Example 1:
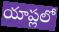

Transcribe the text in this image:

యాప్లలో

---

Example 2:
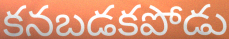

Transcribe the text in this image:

కనబడకపోడు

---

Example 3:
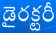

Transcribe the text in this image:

డైరక్టరీ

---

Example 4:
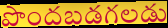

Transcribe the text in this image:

పొందబడగలడు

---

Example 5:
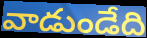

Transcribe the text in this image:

వాడుండేది